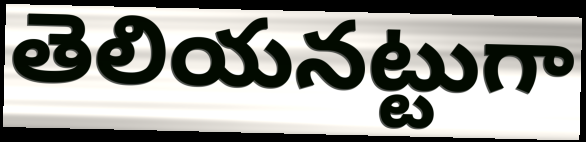
తెలియనట్టుగా